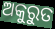
ଅକୁରୁତ